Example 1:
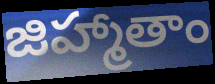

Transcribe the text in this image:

జిహ్మాతాం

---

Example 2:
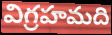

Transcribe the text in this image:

విగ్రహమది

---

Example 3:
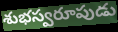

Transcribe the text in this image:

శుభస్వరూపుడు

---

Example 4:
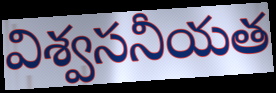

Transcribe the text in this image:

విశ్వసనీయత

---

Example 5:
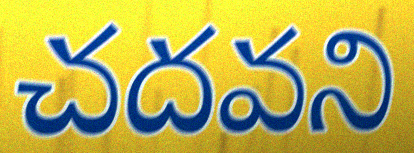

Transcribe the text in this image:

చదవని